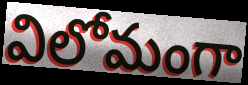
విలోమంగా